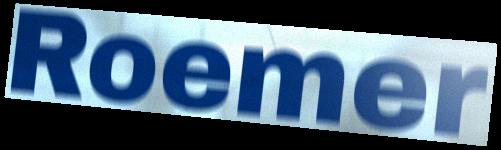
Roemer